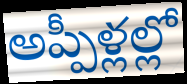
అప్పీళ్లల్లో